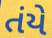
તંયે